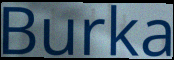
Burka